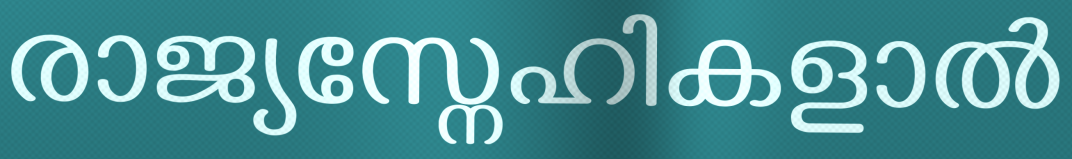
രാജ്യസ്നേഹികളാൽ